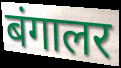
बंगालर